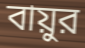
বায়ুর